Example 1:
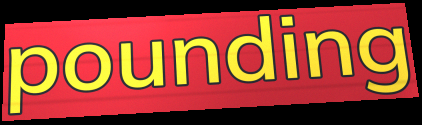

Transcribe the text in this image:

pounding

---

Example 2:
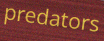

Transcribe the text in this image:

predators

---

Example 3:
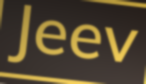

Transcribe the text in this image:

Jeev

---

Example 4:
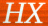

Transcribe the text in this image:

HX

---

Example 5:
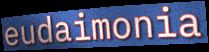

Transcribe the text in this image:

eudaimonia